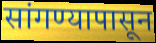
सांगण्यापासून